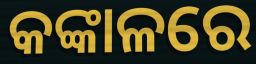
କଙ୍କାଳରେ